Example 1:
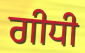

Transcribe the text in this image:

ਗੀਧੀ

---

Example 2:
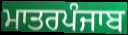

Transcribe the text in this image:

ਮਾਤਰਪੰਜਾਬ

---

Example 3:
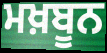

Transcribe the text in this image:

ਮਖ਼ਬੂਨ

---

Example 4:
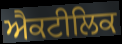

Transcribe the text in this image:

ਐਕਟੀਲਿਕ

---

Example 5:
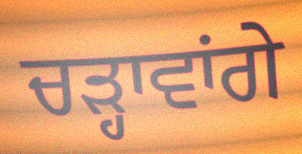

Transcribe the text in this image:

ਚੜ੍ਹਾਵਾਂਗੇ